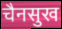
चैनसुख